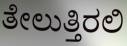
ತೇಲುತ್ತಿರಲಿ